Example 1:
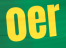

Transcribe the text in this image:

oer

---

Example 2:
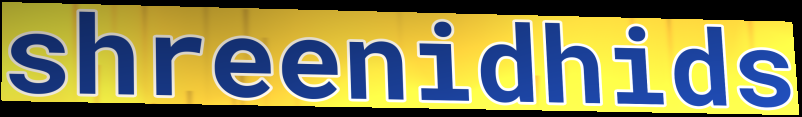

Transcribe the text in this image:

shreenidhids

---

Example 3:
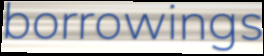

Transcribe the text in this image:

borrowings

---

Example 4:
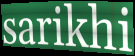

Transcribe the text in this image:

sarikhi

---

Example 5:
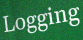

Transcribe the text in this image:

Logging